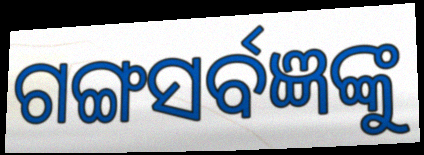
ଗଙ୍ଗସର୍ବଜ୍ଞଙ୍କୁ